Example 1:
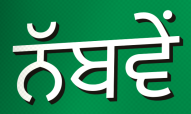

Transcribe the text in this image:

ਨੱਬਵੇਂ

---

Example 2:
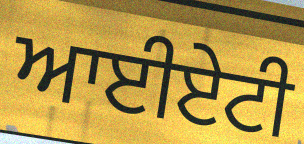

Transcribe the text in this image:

ਆਈਏਟੀ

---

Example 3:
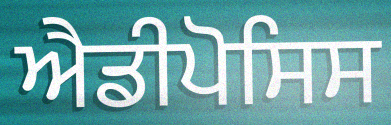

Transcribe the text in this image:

ਐਡੀਪੋਸਿਸ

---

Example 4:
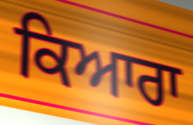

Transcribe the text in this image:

ਕਿਆਰਾ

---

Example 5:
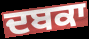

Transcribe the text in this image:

ਦਬਕਾ